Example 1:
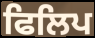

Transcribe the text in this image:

ਫਿਲਿਪ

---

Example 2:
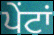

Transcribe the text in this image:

ਪੇਂਟਾਂ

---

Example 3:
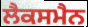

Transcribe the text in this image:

ਲੈਕਸਮੈਨ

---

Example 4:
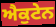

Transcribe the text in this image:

ਐਕੁਟੇਨ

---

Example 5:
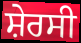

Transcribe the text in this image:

ਸ਼ੇਰਸੀ